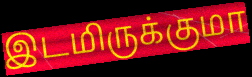
இடமிருக்குமா